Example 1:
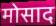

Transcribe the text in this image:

मोसाद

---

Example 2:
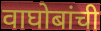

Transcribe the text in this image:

वाघोबांची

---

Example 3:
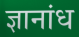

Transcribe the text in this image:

ज्ञानांध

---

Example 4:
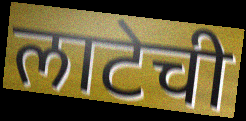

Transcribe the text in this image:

लाटेची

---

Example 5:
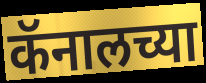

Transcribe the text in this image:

कॅनालच्या